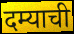
दम्याची